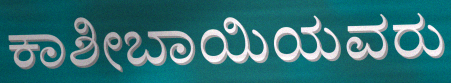
ಕಾಶೀಬಾಯಿಯವರು